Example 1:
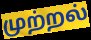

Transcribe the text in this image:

முற்றல்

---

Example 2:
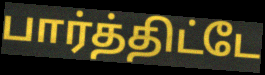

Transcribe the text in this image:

பார்த்திட்டே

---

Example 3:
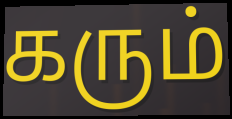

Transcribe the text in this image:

கரும்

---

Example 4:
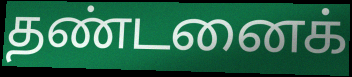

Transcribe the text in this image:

தண்டனைக்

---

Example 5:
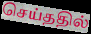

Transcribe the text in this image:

செய்ததில்